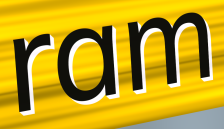
ram